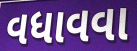
વધાવવા